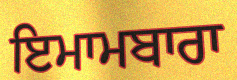
ਇਮਾਮਬਾਰਾ